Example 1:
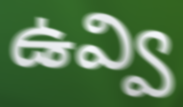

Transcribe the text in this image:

ఉవ్వి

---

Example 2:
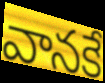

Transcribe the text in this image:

వానకే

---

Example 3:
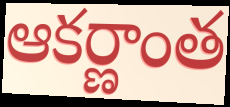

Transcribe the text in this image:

ఆకర్ణాంత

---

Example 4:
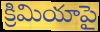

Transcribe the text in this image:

క్రిమియాపై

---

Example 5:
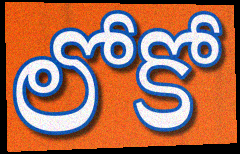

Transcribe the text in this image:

లోకో